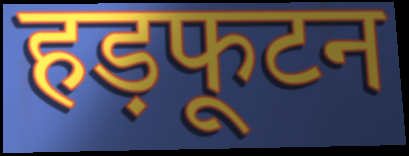
हड़फूटन